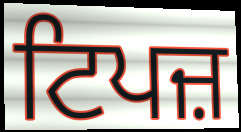
ਟਿਪਜ਼